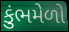
કુંભમેળો